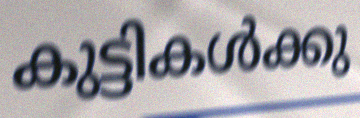
കുട്ടികൾക്കു